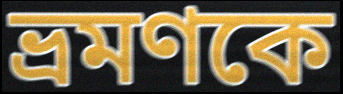
ভ্রমণকে